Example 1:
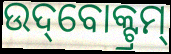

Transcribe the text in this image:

ଉଦ୍‌ବୋକ୍ଟ୍ରମ୍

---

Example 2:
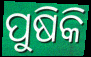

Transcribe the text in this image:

ପୁଷିକି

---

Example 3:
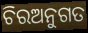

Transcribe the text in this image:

ଚିରଅନୁଗତ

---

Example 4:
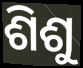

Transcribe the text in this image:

ଶିଶୁ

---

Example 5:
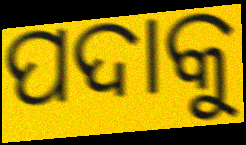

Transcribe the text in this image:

ପଦାକୁ